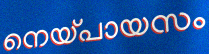
നെയ്പായസം